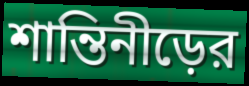
শান্তিনীড়ের